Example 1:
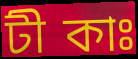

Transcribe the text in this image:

টীকাঃ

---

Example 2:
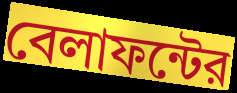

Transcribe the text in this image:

বেলাফন্টের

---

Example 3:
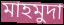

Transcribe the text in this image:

মাহমুদা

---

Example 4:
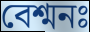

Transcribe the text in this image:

বেশ্মনঃ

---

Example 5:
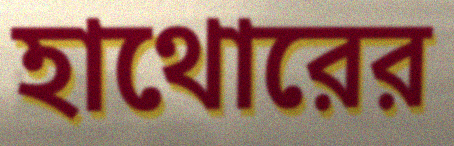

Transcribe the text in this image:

হাথোরের